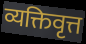
व्यक्तिवृत्त